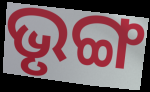
ଭୃଙ୍ଗ